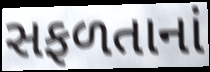
સફળતાનાં